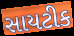
સાયટીક